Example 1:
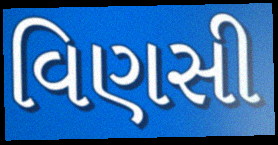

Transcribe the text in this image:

વિણસી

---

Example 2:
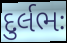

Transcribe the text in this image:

દુર્લભઃ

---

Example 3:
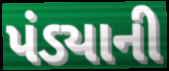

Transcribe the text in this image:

પંડ્યાની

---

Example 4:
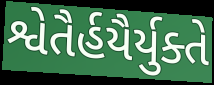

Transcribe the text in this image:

શ્વેતૈર્હયૈર્યુક્તે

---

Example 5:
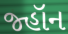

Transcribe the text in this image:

જ્હૉન